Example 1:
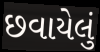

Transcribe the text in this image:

છવાયેલું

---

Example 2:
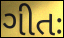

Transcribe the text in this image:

ગીતઃ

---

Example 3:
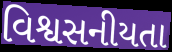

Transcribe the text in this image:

વિશ્વસનીયતા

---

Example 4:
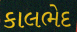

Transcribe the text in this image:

કાલભેદ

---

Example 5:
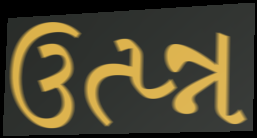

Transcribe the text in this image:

ઉત્પ્ન્ન